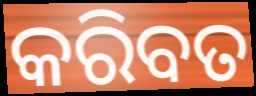
କରିବତ